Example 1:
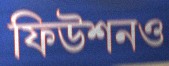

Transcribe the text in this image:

ফিউশনও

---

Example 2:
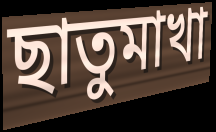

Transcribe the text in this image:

ছাতুমাখা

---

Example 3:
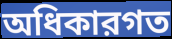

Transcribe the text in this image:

অধিকারগত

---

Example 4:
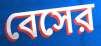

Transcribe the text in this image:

বেসের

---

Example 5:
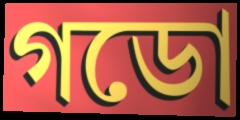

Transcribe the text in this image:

গডো